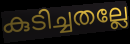
കുടിച്ചതല്ലേ